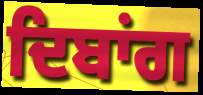
ਦਿਬਾਂਗ